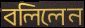
বলিলেন